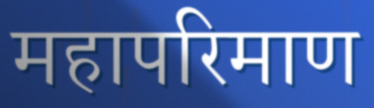
महापरिमाण